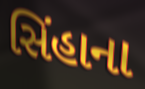
સિંહાના